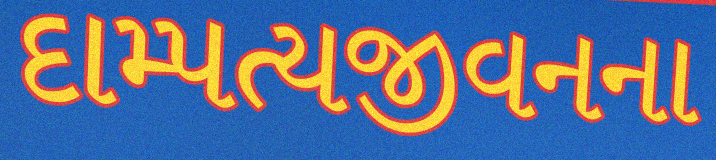
દામ્પત્યજીવનના